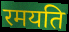
रमयति